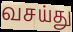
வசய்து